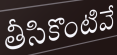
తీసికొంటివే